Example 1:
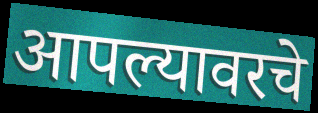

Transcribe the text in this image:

आपल्यावरचे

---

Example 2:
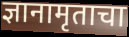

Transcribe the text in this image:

ज्ञानामृताचा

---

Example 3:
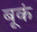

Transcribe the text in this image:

बूकं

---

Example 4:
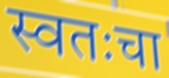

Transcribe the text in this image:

स्वतःचा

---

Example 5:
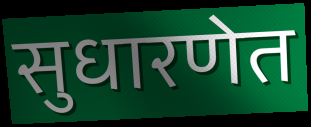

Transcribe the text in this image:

सुधारणेत